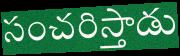
సంచరిస్తాడు